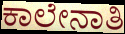
ಕಾಲೇನಾತಿ